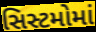
સિસ્ટમોમાં